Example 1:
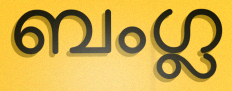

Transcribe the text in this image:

ബംഗ്ല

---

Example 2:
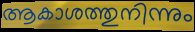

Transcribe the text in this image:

ആകാശത്തുനിന്നും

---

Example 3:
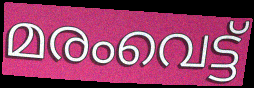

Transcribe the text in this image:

മരംവെട്ട്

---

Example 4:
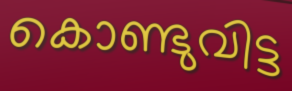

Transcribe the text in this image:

കൊണ്ടുവിട്ട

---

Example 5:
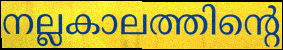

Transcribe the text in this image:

നല്ലകാലത്തിന്റെ